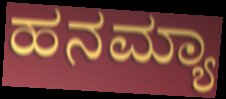
ಹನಮ್ಯಾ